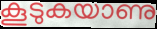
കൂടുകയാണു